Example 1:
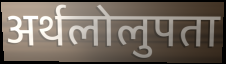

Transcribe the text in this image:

अर्थलोलुपता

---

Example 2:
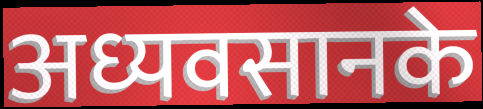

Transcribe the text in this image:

अध्यवसानके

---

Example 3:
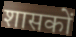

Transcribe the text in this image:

शासकों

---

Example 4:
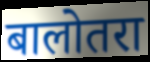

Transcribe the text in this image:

बालोतरा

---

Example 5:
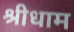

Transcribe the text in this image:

श्रीधाम